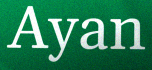
Ayan